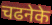
चढनेके